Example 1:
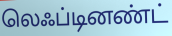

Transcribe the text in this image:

லெஃப்டினண்ட்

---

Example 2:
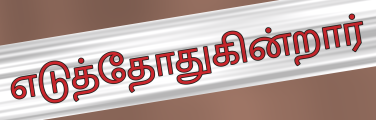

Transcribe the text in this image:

எடுத்தோதுகின்றார்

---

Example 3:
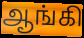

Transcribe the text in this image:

ஆங்கி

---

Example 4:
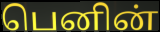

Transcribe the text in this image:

பெனின்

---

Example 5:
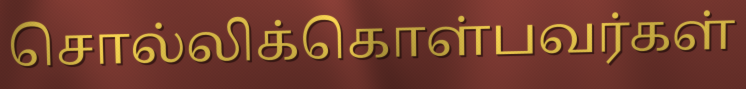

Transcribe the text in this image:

சொல்லிக்கொள்பவர்கள்